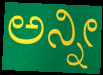
ಅನ್ನೀ